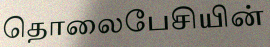
தொலைபேசியின்